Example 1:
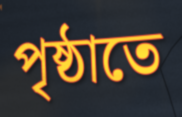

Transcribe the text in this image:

পৃষ্ঠাতে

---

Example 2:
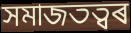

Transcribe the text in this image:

সমাজতত্বৰ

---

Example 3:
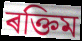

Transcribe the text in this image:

ৰক্তিম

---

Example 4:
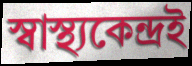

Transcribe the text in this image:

স্বাস্থ্যকেন্দ্ৰই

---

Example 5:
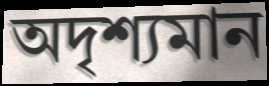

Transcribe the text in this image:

অদৃশ্যমান